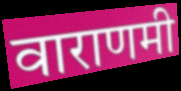
वाराणमी